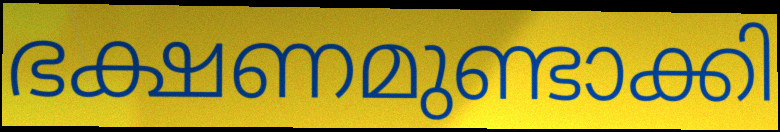
ഭക്ഷണമുണ്ടാക്കി